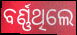
ବର୍ଣ୍ଣଥିଲେ